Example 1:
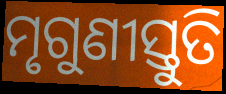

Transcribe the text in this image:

ମୃଗୁଣୀସ୍ତୁତି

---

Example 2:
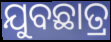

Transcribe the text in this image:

ଯୁବଛାତ୍ର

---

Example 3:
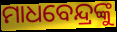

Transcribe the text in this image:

ମାଧବେନ୍ଦ୍ରଙ୍କୁ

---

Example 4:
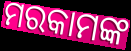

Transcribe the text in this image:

ମରକାମଙ୍କ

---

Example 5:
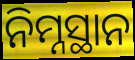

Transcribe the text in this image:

ନିମ୍ନସ୍ଥାନ